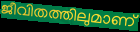
ജീവിതത്തിലുമാണ്